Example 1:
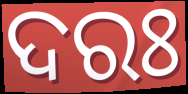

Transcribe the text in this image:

ଦରଃ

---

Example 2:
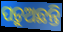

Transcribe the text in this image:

ପଡ଼ୁଅଛନ୍ତି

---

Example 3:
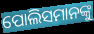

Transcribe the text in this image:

ପୋଲିସମାନଙ୍କୁ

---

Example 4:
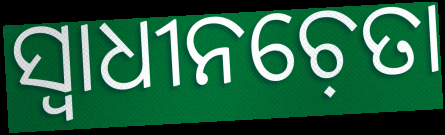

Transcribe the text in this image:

ସ୍ୱାଧୀନଚ଼େତା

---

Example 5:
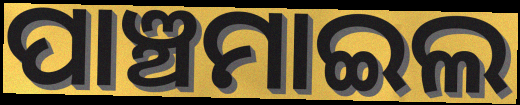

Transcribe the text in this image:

ପାଞ୍ଚମାଇଲ